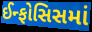
ઈન્ફોસિસમાં